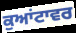
ਕੁਆਂਟਾਵਰ